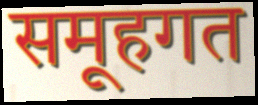
समूहगत